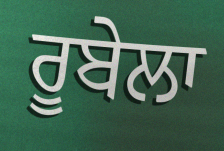
ਰੂਬੇਲਾ